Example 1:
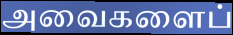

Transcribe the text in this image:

அவைகளைப்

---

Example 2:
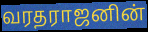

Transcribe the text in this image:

வரதராஜனின்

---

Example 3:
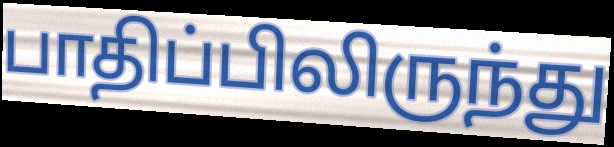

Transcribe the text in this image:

பாதிப்பிலிருந்து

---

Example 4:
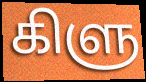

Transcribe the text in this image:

கிளு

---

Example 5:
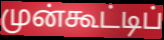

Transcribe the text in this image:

முன்கூட்டிப்